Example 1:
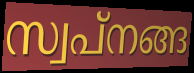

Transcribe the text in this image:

സ്വപ്നങ്ങ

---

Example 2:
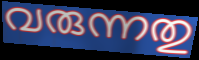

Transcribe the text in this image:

വരുന്നതു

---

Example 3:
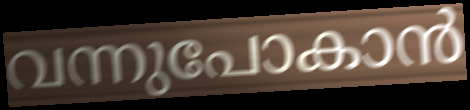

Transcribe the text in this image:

വന്നുപോകാൻ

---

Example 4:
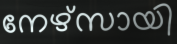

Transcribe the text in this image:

നേഴ്സായി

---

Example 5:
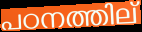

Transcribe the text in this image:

പഠനത്തില്